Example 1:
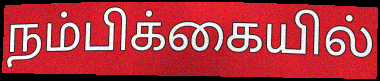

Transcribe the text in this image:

நம்பிக்கையில்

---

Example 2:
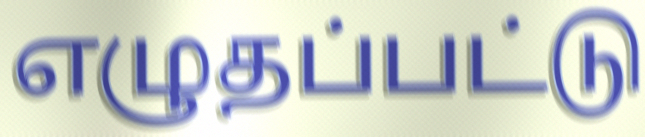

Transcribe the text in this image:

எழுதப்பட்டு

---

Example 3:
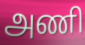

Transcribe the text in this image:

அணி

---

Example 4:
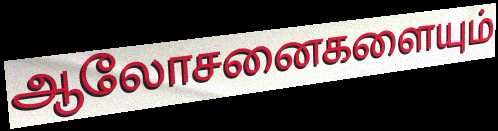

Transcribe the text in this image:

ஆலோசனைகளையும்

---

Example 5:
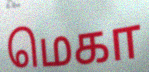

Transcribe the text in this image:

மெகா